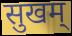
सुखम्